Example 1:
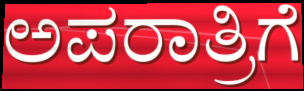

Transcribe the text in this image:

ಅಪರಾತ್ರಿಗೆ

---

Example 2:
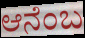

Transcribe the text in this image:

ಆನೆಂಬ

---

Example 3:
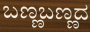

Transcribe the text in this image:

ಬಣ್ಣಬಣ್ಣದ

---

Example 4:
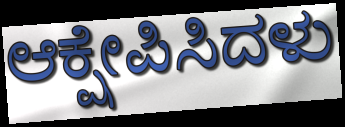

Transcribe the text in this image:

ಆಕ್ಷೇಪಿಸಿದಳು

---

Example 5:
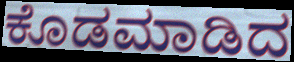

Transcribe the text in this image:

ಕೊಡಮಾಡಿದ